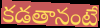
కడతానంటే